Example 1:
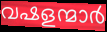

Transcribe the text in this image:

വഷളന്മാർ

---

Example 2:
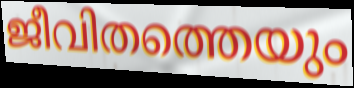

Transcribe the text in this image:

ജീവിതത്തെയും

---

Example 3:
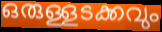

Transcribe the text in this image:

ഒരുള്ളടക്കവും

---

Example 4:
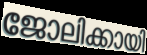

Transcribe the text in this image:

ജോലിക്കായി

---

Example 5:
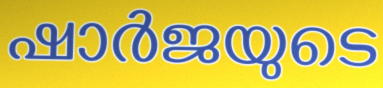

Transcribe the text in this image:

ഷാർജയുടെ